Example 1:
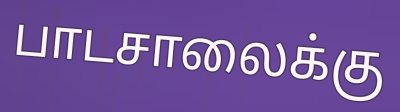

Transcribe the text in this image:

பாடசாலைக்கு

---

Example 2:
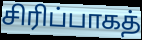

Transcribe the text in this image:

சிரிப்பாகத்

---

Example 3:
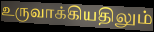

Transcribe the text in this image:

உருவாக்கியதிலும்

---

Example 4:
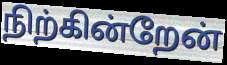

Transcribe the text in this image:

நிற்கின்றேன்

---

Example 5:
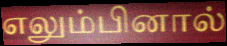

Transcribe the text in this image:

எலும்பினால்